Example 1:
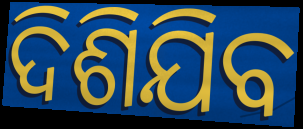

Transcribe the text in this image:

ଦିଶିଯିବ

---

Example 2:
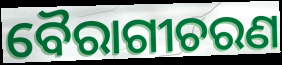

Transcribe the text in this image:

ବୈରାଗୀଚରଣ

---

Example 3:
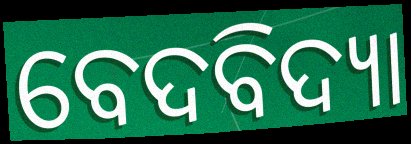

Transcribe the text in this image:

ବେଦବିଦ୍ୟା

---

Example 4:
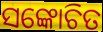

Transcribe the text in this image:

ସଙ୍କୋଚିତ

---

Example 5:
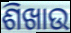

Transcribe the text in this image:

ଶିଖାଉ